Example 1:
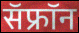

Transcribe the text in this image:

सॅफ्रॉन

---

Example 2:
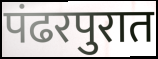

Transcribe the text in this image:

पंढरपुरात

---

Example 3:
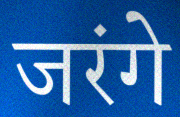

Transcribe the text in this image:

जरंगे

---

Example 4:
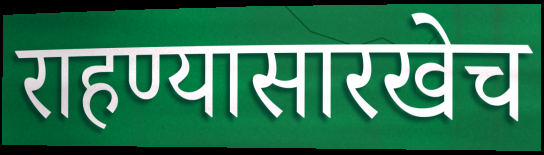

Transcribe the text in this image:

राहण्यासारखेच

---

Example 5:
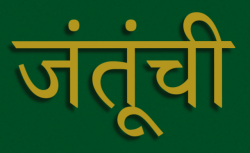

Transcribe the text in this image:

जंतूंची